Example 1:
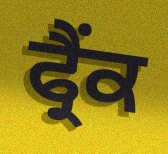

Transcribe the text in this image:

ਫ੍ਰੈਂਕ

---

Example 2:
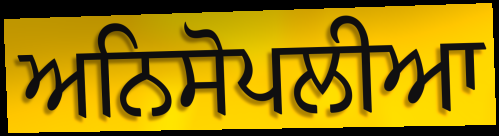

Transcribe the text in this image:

ਅਨਿਸੋਪਲੀਆ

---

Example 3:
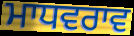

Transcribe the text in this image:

ਮਾਧਵਰਾਵ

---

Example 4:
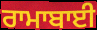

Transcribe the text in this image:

ਰਾਮਾਬਾਈ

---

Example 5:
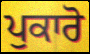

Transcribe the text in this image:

ਪੁਕਾਰੋ